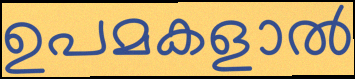
ഉപമകളാൽ